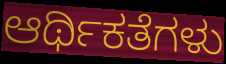
ಆರ್ಥಿಕತೆಗಳು